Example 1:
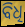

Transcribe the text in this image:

ବିଧି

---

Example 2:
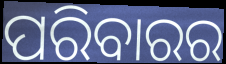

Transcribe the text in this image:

ପରିବାରର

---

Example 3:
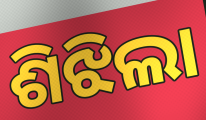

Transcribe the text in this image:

ଶିଝିଲା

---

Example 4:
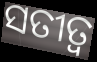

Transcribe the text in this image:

ସତୀତ୍ବ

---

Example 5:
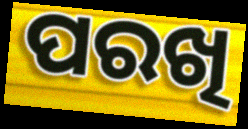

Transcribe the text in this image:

ପରଖି